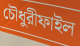
চৌধুরীফাইল